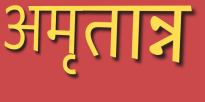
अमृतान्न